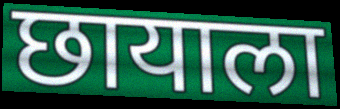
छायाला